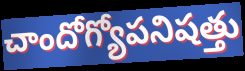
చాందోగ్యోపనిషత్తు